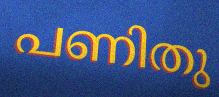
പണിതു